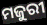
ମଜୁରୀ